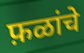
फ़ळांचे